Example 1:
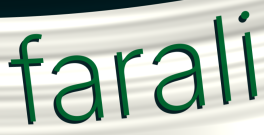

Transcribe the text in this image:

farali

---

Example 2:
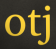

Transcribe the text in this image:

otj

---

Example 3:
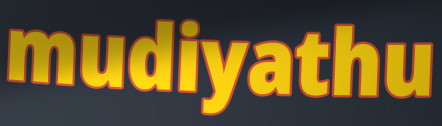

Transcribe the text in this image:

mudiyathu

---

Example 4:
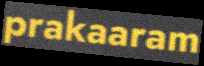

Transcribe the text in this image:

prakaaram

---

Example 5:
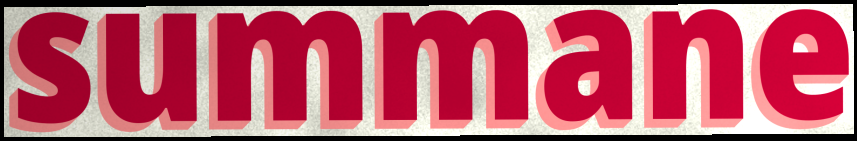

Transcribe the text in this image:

summane